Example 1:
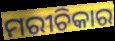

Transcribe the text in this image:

ମରୀଚିକାର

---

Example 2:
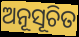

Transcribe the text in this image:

ଅନୂସୂଚିତ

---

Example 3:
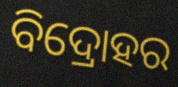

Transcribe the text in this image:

ବିଦ୍ରୋହର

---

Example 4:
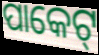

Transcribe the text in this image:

ପାକେଟ୍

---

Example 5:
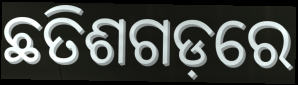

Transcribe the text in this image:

ଛତିଶଗଡ଼ରେ